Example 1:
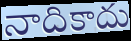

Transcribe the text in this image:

నాదికాదు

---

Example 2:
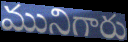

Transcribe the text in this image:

మునిగారు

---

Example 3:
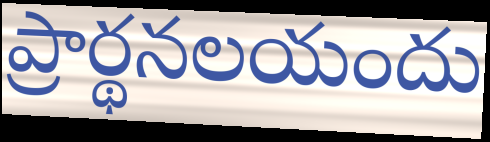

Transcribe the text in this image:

ప్రార్థనలయందు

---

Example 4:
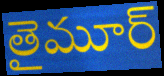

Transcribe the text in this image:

తైమూర్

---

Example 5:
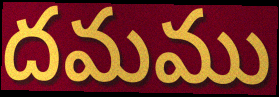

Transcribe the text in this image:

దమము